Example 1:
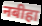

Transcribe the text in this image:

नबीहा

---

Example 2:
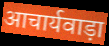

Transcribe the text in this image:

आचार्यवाड़ा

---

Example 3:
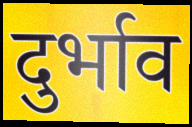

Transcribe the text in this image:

दुर्भाव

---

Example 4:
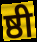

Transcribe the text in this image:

ष्ठी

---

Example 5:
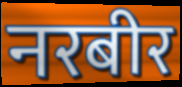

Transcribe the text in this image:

नरबीर